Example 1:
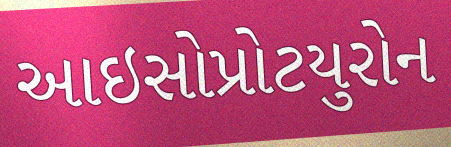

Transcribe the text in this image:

આઇસોપ્રોટયુરોન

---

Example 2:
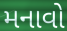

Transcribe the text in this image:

મનાવો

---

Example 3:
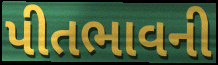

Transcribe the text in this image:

પીતભાવની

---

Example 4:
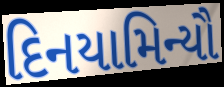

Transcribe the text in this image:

દિનયામિન્યૌ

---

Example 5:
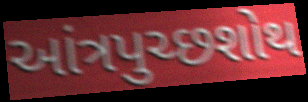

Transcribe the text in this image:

આંત્રપુચ્છશોથ